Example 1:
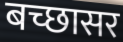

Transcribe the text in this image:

बच्छासर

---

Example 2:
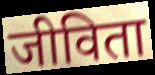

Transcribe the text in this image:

जीविता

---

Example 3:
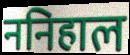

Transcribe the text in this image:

ननिहाल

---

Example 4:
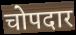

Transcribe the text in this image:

चोपदार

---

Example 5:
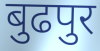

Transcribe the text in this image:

बुढपुर